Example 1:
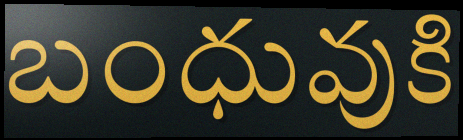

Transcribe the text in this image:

బంధువుకి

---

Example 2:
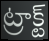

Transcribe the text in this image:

ట్రాక్ట్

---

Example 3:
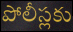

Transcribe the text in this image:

పోలీస్లకు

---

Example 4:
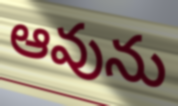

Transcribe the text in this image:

ఆవును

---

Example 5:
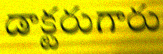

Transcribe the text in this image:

డాక్టరుగారు